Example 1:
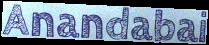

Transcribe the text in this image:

Anandabai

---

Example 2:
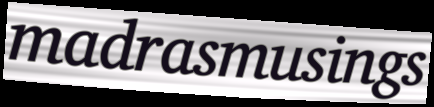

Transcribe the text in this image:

madrasmusings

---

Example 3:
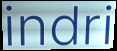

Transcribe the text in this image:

indri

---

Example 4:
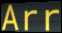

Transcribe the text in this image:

Arr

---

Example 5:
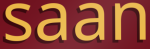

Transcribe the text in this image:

saan